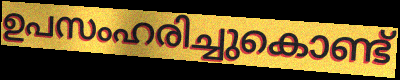
ഉപസംഹരിച്ചുകൊണ്ട്